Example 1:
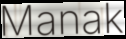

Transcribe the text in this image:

Manak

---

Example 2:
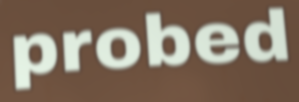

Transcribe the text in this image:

probed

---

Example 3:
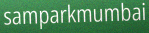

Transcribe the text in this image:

samparkmumbai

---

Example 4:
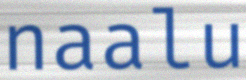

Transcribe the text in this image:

naalu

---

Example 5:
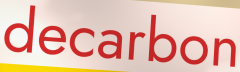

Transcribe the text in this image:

decarbon